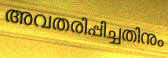
അവതരിപ്പിച്ചതിനും